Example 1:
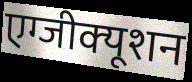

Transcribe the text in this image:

एग्जीक्यूशन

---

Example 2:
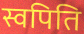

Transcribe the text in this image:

स्वपिति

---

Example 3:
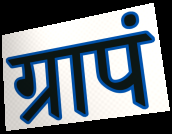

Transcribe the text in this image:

ग्रापं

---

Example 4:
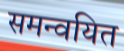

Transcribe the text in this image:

समन्वयित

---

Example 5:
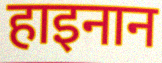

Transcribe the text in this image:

हाइनान